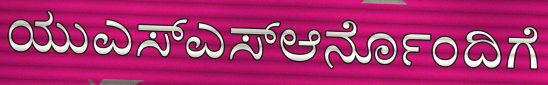
ಯುಎಸ್ಎಸ್ಆರ್ನೊಂದಿಗೆ